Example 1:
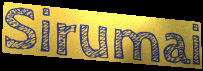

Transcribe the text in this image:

Sirumai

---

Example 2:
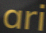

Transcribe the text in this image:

ari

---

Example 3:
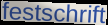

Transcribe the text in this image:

festschrift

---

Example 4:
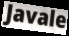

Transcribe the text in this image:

Javale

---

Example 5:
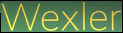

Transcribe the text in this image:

Wexler